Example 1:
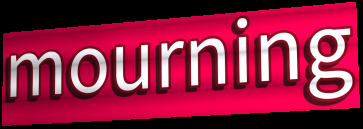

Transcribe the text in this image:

mourning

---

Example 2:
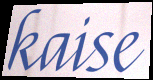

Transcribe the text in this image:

kaise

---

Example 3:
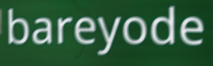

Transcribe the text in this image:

bareyode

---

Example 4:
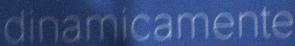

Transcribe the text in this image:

dinamicamente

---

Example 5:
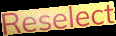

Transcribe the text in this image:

Reselect